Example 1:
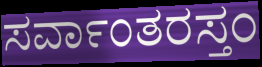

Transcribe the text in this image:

ಸರ್ವಾಂತರಸ್ತಂ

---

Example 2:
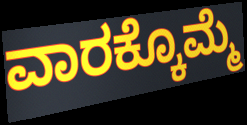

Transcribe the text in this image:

ವಾರಕ್ಕೊಮ್ಮೆ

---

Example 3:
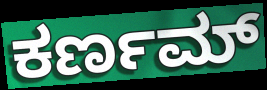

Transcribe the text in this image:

ಕರ್ಣಮ್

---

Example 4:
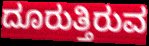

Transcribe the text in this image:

ದೂರುತ್ತಿರುವ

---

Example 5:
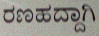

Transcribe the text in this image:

ರಣಹದ್ದಾಗಿ